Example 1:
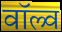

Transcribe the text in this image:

वॉल्व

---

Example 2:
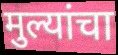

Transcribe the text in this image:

मुल्यांचा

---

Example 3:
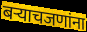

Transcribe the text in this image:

बऱ्याचजणांना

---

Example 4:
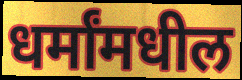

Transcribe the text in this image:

धर्मांमधील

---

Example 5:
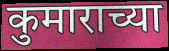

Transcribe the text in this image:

कुमाराच्या